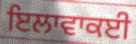
ਇਲਾਵਾਕਈ